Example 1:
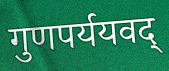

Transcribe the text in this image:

गुणपर्ययवद्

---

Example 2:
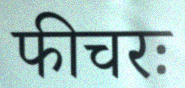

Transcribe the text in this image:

फीचरः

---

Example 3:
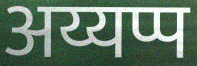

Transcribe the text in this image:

अय्यप्प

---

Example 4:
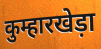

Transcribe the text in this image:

कुम्हारखेड़ा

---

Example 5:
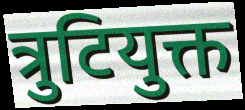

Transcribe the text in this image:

त्रुटियुक्त